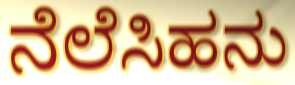
ನೆಲೆಸಿಹನು